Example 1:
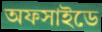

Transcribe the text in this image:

অফসাইডে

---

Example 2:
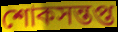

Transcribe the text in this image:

শোকসন্তপ্ত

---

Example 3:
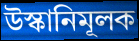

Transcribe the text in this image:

উস্কানিমূলক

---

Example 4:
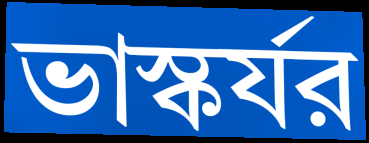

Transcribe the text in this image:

ভাস্কর্যর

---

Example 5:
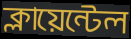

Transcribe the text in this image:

ক্লায়েন্টেল